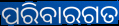
ପରିବାରଗତ